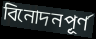
বিনোদনপূর্ণ